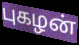
புகழன்